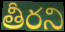
తీరని